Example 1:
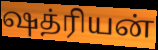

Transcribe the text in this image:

ஷத்ரியன்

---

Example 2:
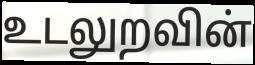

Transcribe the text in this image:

உடலுறவின்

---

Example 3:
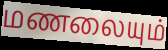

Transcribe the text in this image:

மணலையும்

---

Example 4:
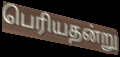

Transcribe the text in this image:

பெரியதன்று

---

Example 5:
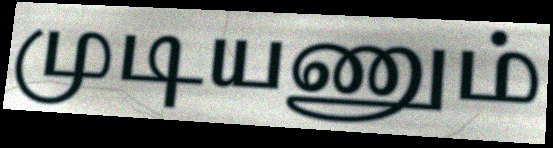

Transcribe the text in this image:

முடியணும்